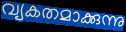
വ്യകതമാക്കുന്നു